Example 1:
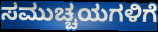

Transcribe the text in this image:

ಸಮುಚ್ಚಯಗಳಿಗೆ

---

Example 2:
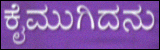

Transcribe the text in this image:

ಕೈಮುಗಿದನು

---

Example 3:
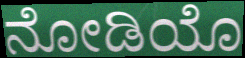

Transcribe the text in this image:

ನೋಡಿಯೊ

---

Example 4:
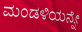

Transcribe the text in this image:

ಮಂಡಳಿಯನ್ನೇ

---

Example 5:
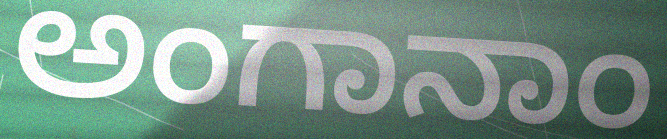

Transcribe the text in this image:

ಅಂಗಾನಾಂ